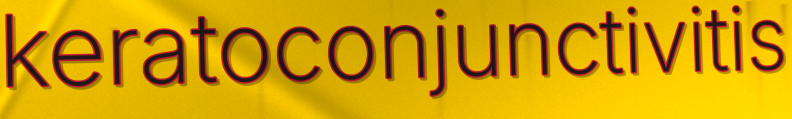
keratoconjunctivitis